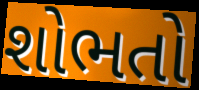
શોભતો